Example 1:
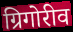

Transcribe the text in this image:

ग्रिगोरीव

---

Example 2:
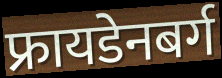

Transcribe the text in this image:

फ्रायडेनबर्ग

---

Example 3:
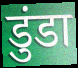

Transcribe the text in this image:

डुंडा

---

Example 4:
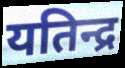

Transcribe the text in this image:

यतिन्द्र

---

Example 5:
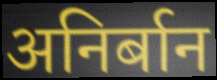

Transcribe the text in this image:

अनिर्बान